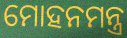
ମୋହନମନ୍ତ୍ର